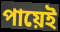
পায়েই